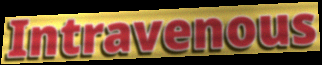
Intravenous